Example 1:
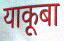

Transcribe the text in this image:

याकूबा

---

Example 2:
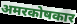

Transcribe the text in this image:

अमरकोषकार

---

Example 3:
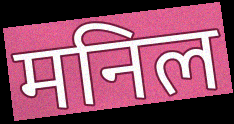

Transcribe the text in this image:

मनिल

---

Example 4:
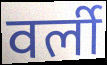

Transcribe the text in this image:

वर्ली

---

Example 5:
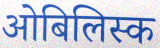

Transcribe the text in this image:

ओबिलिस्क